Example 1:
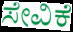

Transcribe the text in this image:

ಸೇವಿಕೆ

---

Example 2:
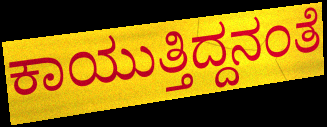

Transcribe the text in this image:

ಕಾಯುತ್ತಿದ್ದನಂತೆ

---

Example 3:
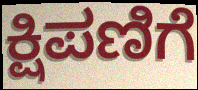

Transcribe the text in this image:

ಕ್ಷಿಪಣಿಗೆ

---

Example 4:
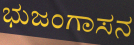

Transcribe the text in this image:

ಭುಜಂಗಾಸನ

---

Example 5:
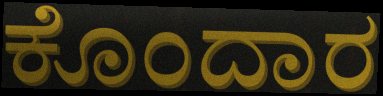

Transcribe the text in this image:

ಕೊಂದಾರ